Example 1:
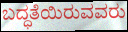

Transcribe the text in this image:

ಬದ್ಧತೆಯಿರುವವರು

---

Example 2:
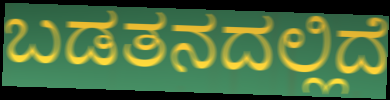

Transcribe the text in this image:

ಬಡತನದಲ್ಲಿದೆ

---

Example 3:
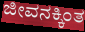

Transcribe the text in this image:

ಜೀವನಕ್ಕಿಂತ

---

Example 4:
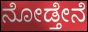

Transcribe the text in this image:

ನೋಡ್ತೇನೆ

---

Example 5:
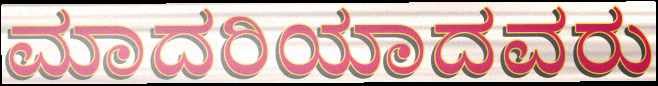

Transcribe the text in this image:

ಮಾದರಿಯಾದವರು